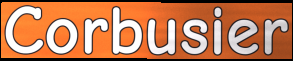
Corbusier